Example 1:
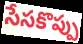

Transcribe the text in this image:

సేసకొప్పు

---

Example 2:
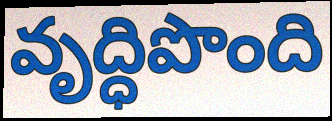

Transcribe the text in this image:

వృద్ధిపొంది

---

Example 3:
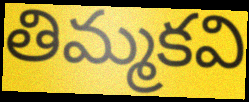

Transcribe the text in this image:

తిమ్మకవి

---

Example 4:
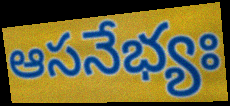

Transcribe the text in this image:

ఆసనేభ్యః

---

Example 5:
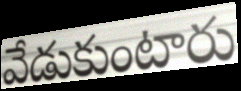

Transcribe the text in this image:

వేడుకుంటారు